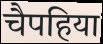
चैपहिया